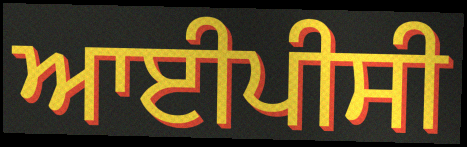
ਆਈਪੀਸੀ